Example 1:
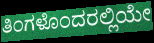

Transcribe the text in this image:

ತಿಂಗಳೊಂದರಲ್ಲಿಯೇ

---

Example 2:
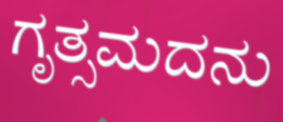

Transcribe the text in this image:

ಗೃತ್ಸಮದನು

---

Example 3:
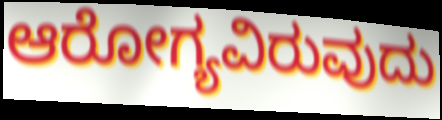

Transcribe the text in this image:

ಆರೋಗ್ಯವಿರುವುದು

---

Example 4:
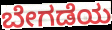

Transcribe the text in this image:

ಬೇಗಡೆಯ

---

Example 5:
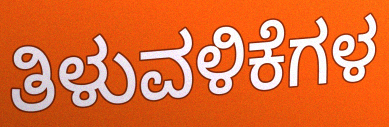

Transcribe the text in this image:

ತಿಳುವಳಿಕೆಗಳ